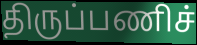
திருப்பணிச்